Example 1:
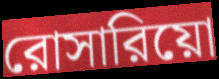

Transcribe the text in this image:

রোসারিয়ো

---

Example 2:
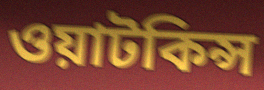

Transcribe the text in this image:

ওয়াটকিন্স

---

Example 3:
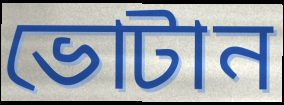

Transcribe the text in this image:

ভোটান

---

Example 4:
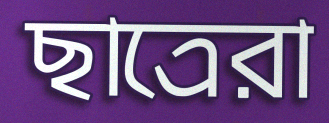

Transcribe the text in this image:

ছাত্রেরা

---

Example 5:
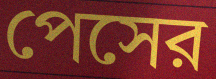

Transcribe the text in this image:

পেসের